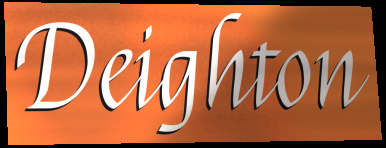
Deighton